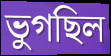
ভুগছিল